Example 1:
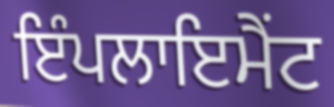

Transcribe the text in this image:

ਇੰਪਲਾਇਮੈਂਟ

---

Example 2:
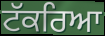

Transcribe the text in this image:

ਟੱਕਰਿਆ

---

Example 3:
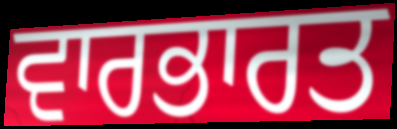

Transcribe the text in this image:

ਵਾਰਭਾਰਤ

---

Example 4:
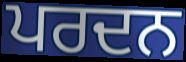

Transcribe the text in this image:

ਪਰਦਨ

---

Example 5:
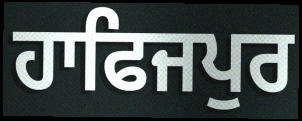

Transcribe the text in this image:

ਹਾਫਿਜਪੁਰ